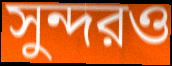
সুন্দরও